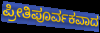
ಪ್ರೀತಿಪೂರ್ವಕವಾದ